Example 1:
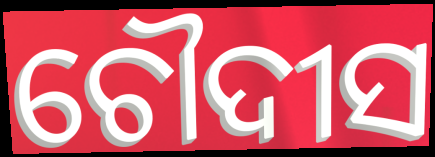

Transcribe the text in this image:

ଚୌଦୀସ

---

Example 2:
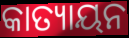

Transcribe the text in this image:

କାତ୍ୟାୟନ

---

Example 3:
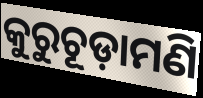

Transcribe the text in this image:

କୁରୁଚୂଡ଼ାମଣି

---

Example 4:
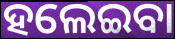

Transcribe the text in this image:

ହଲେଇବା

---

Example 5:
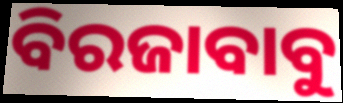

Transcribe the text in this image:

ବିରଜାବାବୁ